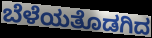
ಬೆಳೆಯತೊಡಗಿದ